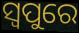
ସ୍ୱପୁରେ